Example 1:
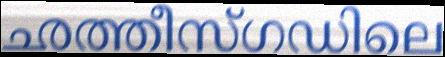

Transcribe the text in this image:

ഛത്തീസ്ഗഡിലെ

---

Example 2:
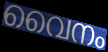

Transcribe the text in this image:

വൈനം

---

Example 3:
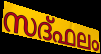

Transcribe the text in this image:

സദ്ഫലം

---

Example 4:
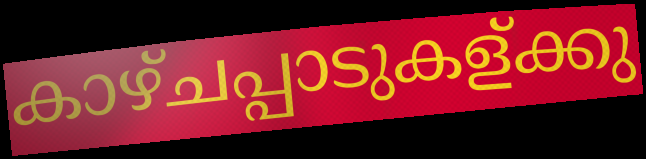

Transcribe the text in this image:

കാഴ്ചപ്പാടുകള്ക്കു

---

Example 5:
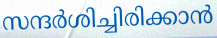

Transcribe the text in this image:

സന്ദർശിച്ചിരിക്കാൻ